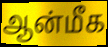
ஆன்மீக